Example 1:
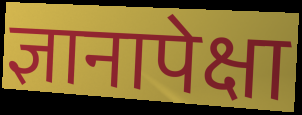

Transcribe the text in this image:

ज्ञानापेक्षा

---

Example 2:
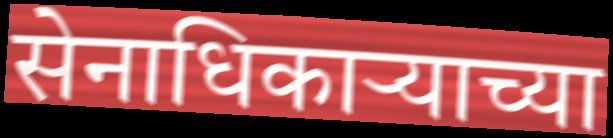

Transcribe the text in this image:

सेनाधिकाऱ्याच्या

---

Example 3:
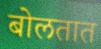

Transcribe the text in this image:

बोलतात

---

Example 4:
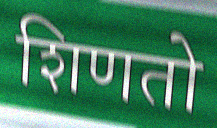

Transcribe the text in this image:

शिणतो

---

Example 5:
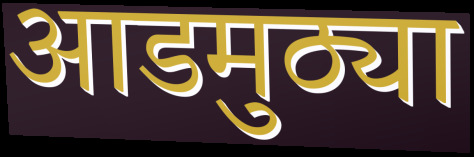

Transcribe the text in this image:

आडमुठ्या